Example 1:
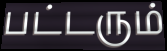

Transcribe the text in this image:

பட்டரும்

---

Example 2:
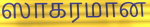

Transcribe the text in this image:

ஸாகரமான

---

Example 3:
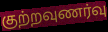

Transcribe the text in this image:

குற்றவுணர்வு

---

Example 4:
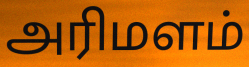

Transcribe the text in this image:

அரிமளம்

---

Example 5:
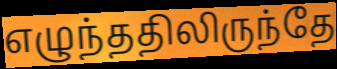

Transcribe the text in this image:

எழுந்ததிலிருந்தே